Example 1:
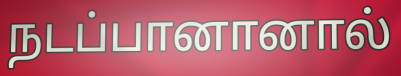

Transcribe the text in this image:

நடப்பானானால்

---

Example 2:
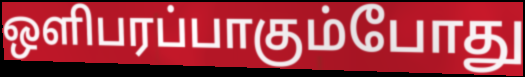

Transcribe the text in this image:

ஒளிபரப்பாகும்போது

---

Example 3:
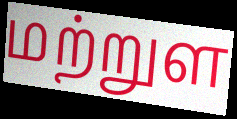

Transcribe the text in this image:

மற்றுள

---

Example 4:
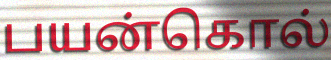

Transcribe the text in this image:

பயன்கொல்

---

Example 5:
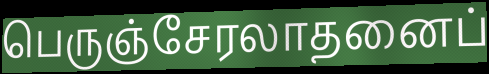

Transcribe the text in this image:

பெருஞ்சேரலாதனைப்